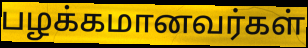
பழக்கமானவர்கள்